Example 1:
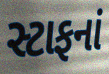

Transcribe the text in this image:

સ્ટાફનાં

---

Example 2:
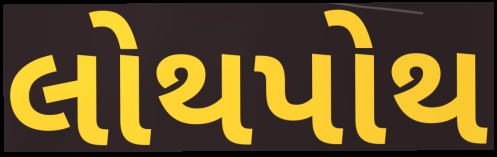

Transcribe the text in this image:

લોથપોથ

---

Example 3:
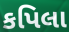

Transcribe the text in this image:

કપિલા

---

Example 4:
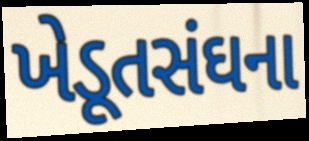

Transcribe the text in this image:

ખેડૂતસંઘના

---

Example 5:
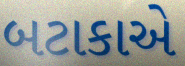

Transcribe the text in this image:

બટાકાએ